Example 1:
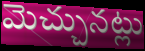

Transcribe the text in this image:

మెచ్చునట్లు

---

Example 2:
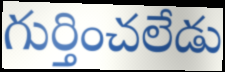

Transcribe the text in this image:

గుర్తించలేడు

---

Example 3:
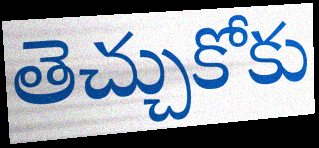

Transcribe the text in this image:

తెచ్చుకోకు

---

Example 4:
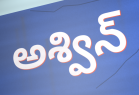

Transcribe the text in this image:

అశ్విన్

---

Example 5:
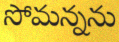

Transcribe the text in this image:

సోమన్నను